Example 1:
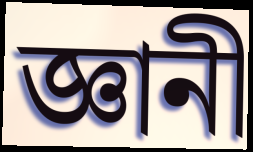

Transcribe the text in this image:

জ্ঞানী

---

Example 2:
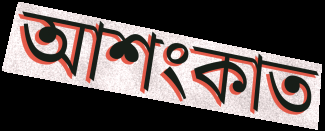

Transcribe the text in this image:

আশংকাত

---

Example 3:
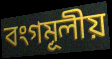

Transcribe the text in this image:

বংগমূলীয়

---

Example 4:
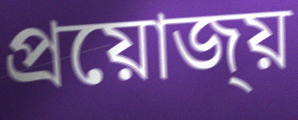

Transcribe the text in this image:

প্ৰয়োজ্য়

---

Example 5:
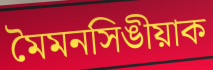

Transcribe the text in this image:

মৈমনসিঙীয়াক